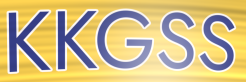
KKGSS